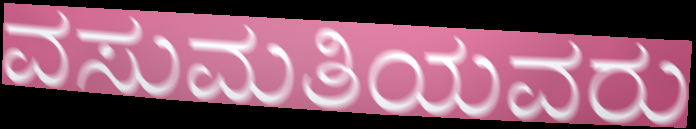
ವಸುಮತಿಯವರು